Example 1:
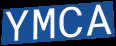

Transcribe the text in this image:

YMCA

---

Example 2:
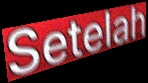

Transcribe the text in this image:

Setelah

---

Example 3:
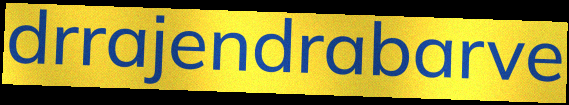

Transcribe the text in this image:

drrajendrabarve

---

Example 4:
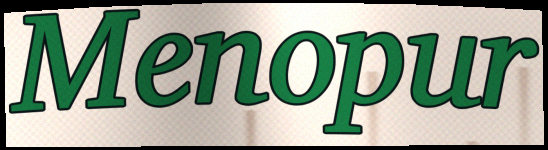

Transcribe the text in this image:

Menopur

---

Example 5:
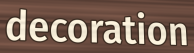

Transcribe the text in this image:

decoration